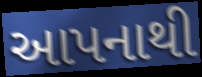
આપનાથી